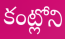
కంట్లోని